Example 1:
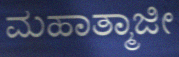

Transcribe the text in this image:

ಮಹಾತ್ಮಾಜೀ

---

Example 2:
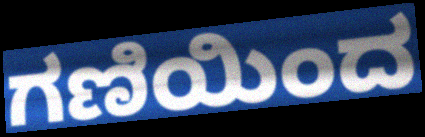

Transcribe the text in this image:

ಗಣಿಯಿಂದ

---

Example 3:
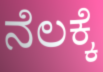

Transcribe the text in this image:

ನೆಲಕ್ಕೆ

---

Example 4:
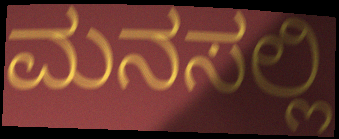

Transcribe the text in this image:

ಮನಸಲ್ಲಿ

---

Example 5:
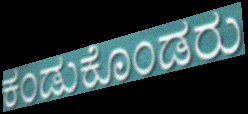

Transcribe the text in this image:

ಕಂಡುಕೊಂಡರು